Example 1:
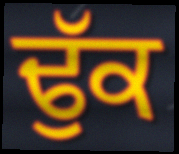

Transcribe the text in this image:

ਢੁੱਕ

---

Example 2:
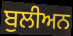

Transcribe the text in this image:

ਬੁਲੀਅਨ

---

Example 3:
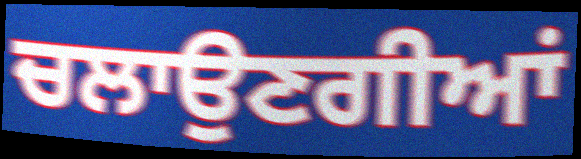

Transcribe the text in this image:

ਚਲਾਉਣਗੀਆਂ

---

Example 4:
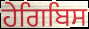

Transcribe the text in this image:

ਹੇਗਿਬਿਸ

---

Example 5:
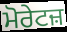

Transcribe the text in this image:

ਮੋਰੇਟਜ਼